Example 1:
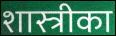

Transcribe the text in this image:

शास्त्रीका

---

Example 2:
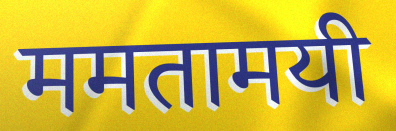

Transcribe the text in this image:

ममतामयी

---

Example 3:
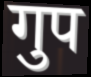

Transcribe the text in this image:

गुप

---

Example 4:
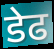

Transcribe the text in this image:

डेढ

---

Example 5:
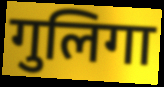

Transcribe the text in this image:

गुलिगा